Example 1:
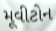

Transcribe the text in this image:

મૂવીટોન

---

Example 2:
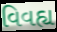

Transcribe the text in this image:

વિવહ્ય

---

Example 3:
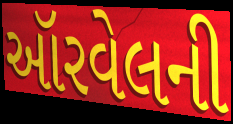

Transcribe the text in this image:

ઑરવેલની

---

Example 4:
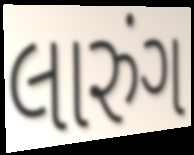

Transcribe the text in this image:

લારુંગ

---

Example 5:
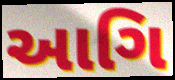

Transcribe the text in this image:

આગિ